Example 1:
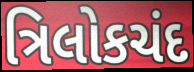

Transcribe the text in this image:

ત્રિલોકચંદ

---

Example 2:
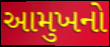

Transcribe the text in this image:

આમુખનો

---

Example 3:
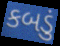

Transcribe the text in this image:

કબડું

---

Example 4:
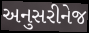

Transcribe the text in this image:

અનુસરીનેજ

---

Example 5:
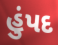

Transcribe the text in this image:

હુંપદ